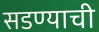
सडण्याची